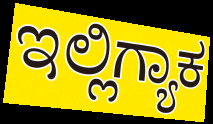
ಇಲ್ಲಿಗ್ಯಾಕ